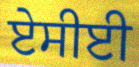
ਏਸੀਈ